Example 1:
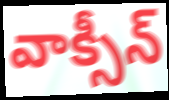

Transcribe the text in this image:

వాక్సీన్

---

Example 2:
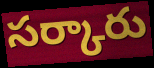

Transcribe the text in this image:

సర్కారు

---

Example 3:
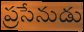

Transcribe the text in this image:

ప్రసేనుడు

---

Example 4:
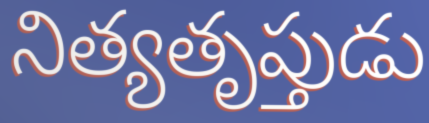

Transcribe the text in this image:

నిత్యతృప్తుడు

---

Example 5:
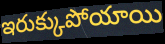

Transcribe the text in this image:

ఇరుక్కుపోయాయి